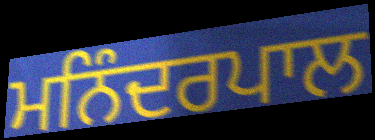
ਮਨਿੰਦਰਪਾਲ